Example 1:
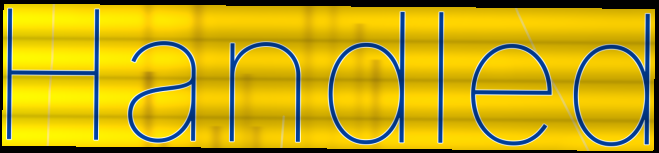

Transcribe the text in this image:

Handled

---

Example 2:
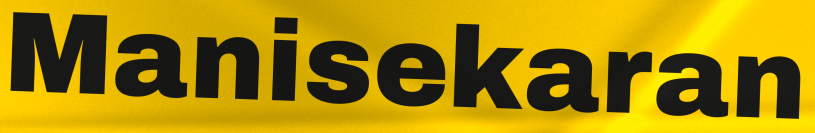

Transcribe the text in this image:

Manisekaran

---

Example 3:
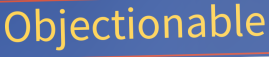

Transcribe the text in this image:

Objectionable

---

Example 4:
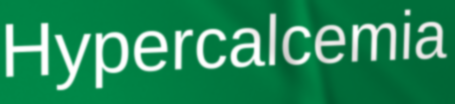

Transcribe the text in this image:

Hypercalcemia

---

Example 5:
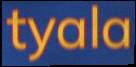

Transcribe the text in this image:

tyala